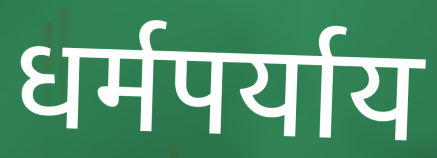
धर्मपर्याय